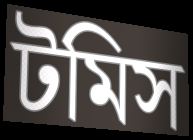
টমিস